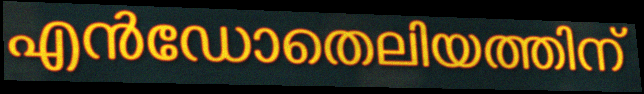
എൻഡോതെലിയത്തിന്